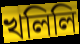
খলিলি